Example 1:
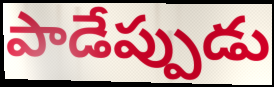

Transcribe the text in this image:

పాడేప్పుడు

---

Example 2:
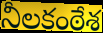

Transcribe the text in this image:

నీలకంఠేశ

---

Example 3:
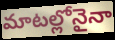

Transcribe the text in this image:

మాటల్లోనైనా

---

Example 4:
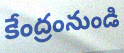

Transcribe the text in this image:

కేంద్రంనుండి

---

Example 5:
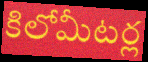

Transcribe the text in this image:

కిలోమీటర్ల